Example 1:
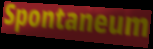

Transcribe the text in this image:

Spontaneum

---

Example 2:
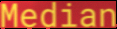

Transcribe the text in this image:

Median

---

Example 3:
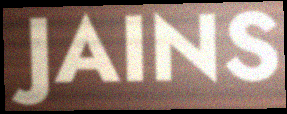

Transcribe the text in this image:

JAINS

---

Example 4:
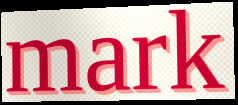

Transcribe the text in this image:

mark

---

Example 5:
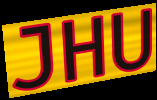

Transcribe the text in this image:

JHU